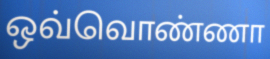
ஒவ்வொண்ணா